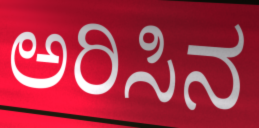
ಅರಿಸಿನ